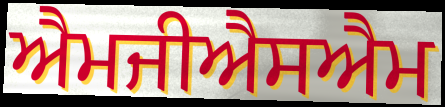
ਐਮਜੀਐਸਐਮ